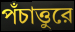
পঁচাত্তুরে